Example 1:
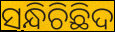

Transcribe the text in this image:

ସନ୍ଧିଚିଛିଦ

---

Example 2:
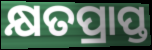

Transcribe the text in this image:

କ୍ଷତପ୍ରାପ୍ତ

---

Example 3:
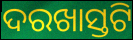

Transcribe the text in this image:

ଦରଖାସ୍ତଟି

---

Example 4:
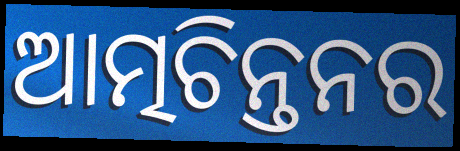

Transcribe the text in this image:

ଆତ୍ମଚିନ୍ତନର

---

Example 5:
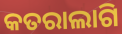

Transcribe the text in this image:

କତରାଲାଗି